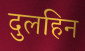
दुलहिन